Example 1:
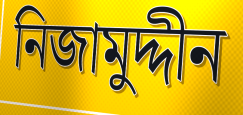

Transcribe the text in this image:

নিজামুদ্দীন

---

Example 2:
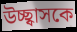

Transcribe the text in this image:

উচ্ছ্বাসকে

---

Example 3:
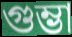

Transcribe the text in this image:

গুম্ভা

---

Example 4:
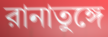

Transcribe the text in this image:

রানাতুঙ্গে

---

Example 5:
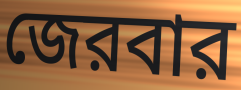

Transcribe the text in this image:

জেরবার